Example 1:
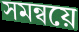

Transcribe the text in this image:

সমন্বয়ে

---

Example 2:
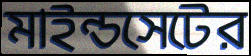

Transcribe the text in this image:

মাইন্ডসেটের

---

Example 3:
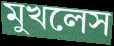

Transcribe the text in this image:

মুখলেস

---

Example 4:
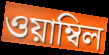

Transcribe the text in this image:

ওয়াম্বিল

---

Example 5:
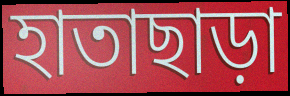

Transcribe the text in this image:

হাতাছাড়া